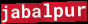
jabalpur